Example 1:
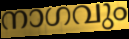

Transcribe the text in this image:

നാഗവും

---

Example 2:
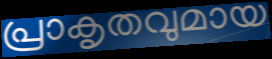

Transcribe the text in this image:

പ്രാകൃതവുമായ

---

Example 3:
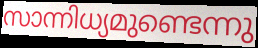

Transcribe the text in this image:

സാന്നിധ്യമുണ്ടെന്നു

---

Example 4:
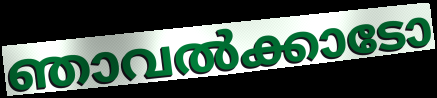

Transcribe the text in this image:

ഞാവൽക്കാടോ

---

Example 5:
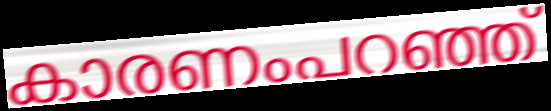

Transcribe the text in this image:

കാരണംപറഞ്ഞ്